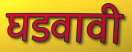
घडवावी